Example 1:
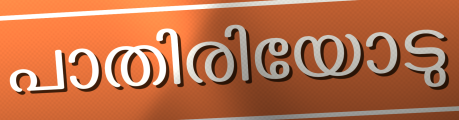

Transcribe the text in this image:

പാതിരിയോടു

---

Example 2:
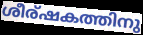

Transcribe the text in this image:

ശീര്ഷകത്തിനു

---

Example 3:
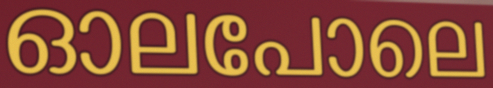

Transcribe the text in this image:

ഓലപോലെ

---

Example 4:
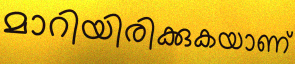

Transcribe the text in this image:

മാറിയിരിക്കുകയാണ്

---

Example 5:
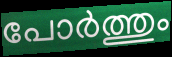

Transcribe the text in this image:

പോർത്തും